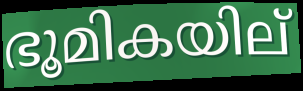
ഭൂമികയില്